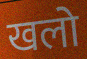
खलो